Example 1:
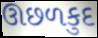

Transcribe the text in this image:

ઊછળકુદ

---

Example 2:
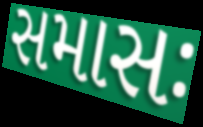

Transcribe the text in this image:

સમાસઃ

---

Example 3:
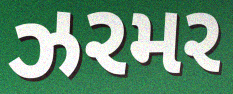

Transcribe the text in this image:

ઝરમર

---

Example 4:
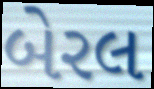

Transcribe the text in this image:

બેરલ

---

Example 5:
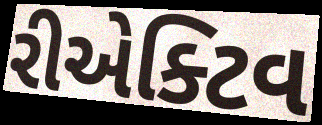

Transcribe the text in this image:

રીએક્ટિવ